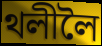
থলীলৈ